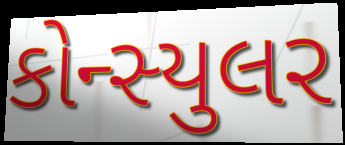
કોન્સ્યુલર